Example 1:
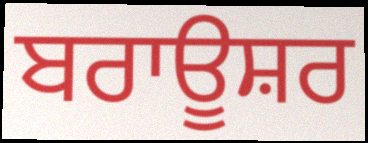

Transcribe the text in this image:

ਬਰਾਊਸ਼ਰ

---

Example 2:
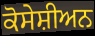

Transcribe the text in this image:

ਕੋਸੇਸ਼ੀਅਨ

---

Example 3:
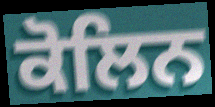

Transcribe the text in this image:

ਕੋਲਿਨ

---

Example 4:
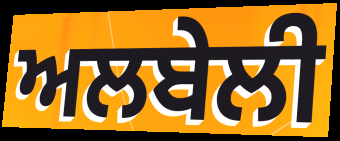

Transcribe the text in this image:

ਅਲਬੇਲੀ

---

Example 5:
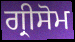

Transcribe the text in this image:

ਗ੍ਰੀਸੋਮ